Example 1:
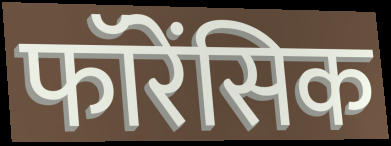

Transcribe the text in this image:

फॉरेंसिक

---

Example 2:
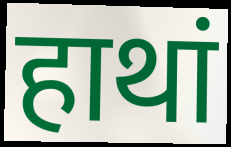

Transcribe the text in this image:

हाथां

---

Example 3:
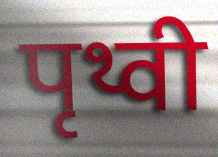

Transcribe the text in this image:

पृथ्‍वी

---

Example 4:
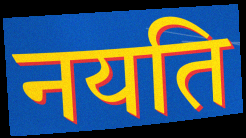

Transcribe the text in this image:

नयति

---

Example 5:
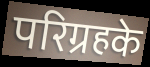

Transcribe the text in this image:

परिग्रहके